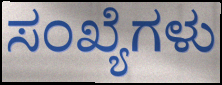
ಸಂಖ್ಯೆಗಳು